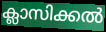
ക്ലാസിക്കൽ